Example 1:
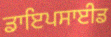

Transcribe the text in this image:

ਡਾਇਪਸਾਈਡ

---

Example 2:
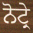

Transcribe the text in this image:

ਨੋਟ੍ਰੇ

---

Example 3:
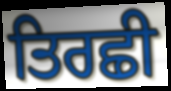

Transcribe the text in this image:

ਤਿਰਛੀ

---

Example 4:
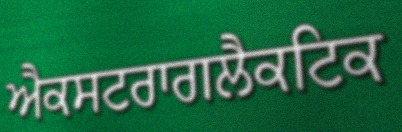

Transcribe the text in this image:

ਐਕਸਟਰਾਗਲੈਕਟਿਕ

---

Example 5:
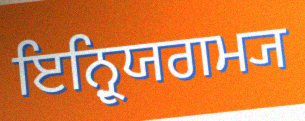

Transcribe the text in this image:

ਇਨ੍ਦ੍ਰਿਯਗਮ੍ਯ